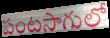
పంటసాగులో